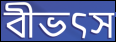
বীভৎস